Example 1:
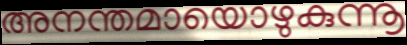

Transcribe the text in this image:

അനന്തമായൊഴുകുന്നൂ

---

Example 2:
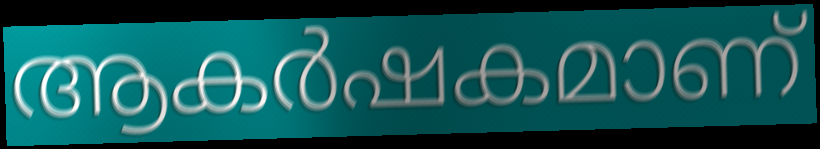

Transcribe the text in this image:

ആകർഷകമാണ്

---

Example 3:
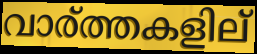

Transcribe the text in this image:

വാര്ത്തകളില്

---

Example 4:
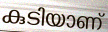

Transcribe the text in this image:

കുടിയാണ്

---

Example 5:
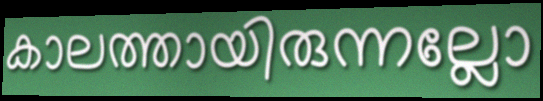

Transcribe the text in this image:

കാലത്തായിരുന്നല്ലോ